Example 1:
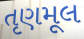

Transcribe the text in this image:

તૃણમૂલ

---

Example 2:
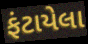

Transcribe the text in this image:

ફંટાયેલા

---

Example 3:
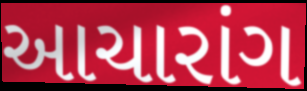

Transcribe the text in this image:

આચારાંગ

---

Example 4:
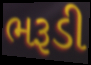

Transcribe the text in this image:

ભરૂડી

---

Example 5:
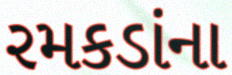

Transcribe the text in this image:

રમકડાંના